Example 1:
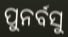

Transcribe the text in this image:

ପୁନର୍ବସୁ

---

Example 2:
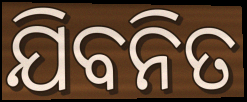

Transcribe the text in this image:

ଯିବନିତ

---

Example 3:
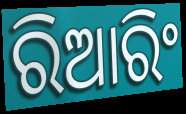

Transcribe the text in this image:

ରିଆରିଂ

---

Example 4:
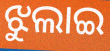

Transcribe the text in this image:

ଝୁଲାଇ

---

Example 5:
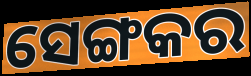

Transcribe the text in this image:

ସେଙ୍ଗକର